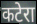
कटेरा